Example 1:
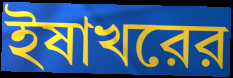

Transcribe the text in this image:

ইষাখরের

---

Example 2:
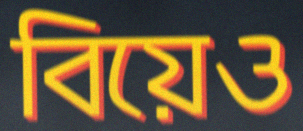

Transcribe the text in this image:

বিয়েও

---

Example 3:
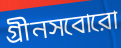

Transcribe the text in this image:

গ্রীনসবোরো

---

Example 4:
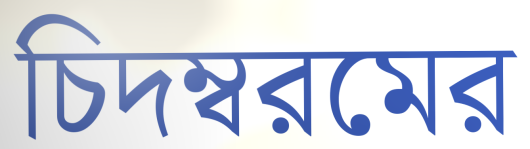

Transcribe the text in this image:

চিদম্বরমের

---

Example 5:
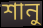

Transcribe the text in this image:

শানু